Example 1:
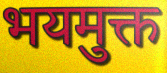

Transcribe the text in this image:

भयमुक्त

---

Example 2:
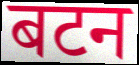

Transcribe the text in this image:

बटन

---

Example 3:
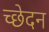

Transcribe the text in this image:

च्छेदन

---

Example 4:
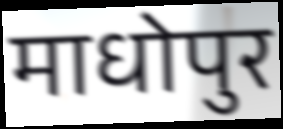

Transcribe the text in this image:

माधोपुर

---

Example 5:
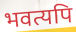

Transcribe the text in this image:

भवत्यपि